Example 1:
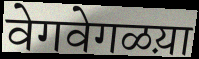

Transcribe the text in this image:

वेगवेगळय़ा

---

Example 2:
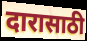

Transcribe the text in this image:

दारासाठी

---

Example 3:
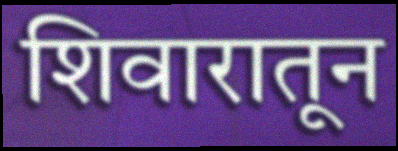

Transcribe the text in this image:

शिवारातून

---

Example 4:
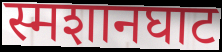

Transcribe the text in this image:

स्मशानघाट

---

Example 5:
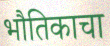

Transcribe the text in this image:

भौतिकाचा